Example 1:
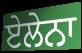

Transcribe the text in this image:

ਏਲੇਨਾ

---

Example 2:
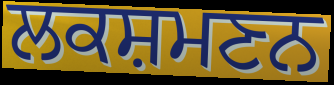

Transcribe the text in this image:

ਲਕਸ਼ਮਣਨ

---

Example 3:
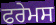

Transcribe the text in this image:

ਫਰੇਮਸ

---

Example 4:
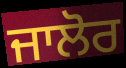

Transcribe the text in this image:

ਜਾਲੋਰ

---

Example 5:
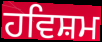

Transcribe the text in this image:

ਹਵਿਸ਼ਮ